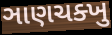
ઞાણચક્ખુ